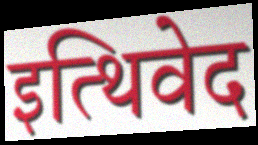
इत्थिवेद